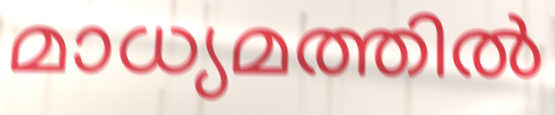
മാധ്യമത്തിൽ